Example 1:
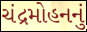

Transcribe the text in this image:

ચંદ્રમોહનનું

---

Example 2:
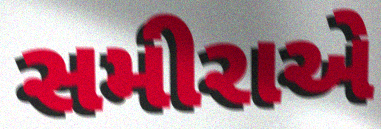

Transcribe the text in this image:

સમીરાએ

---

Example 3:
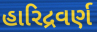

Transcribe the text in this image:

હારિદ્રવર્ણ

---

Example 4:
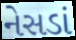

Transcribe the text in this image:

નેસડાં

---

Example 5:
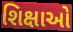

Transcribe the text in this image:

શિક્ષાઓ